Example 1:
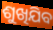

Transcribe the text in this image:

ଶୁଖିଯିବ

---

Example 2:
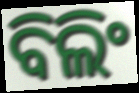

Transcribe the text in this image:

ବିଲିଂ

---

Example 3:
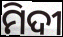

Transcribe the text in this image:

ମିଦୀ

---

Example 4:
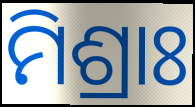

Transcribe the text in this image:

ମିଶ୍ରାଃ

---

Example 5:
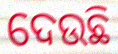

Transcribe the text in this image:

ଦେଉଛି